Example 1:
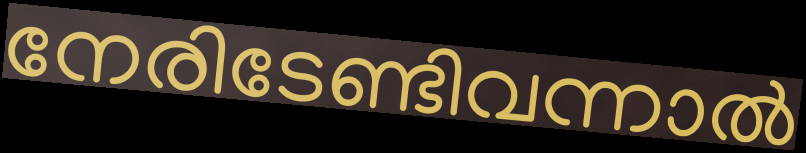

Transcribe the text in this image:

നേരിടേണ്ടിവന്നാൽ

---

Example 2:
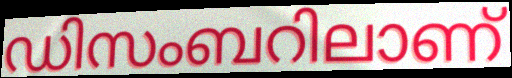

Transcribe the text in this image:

ഡിസംബറിലാണ്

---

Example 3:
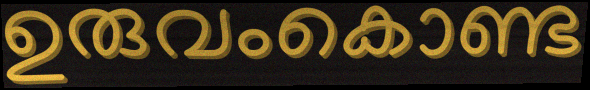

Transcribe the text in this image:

ഉരുവംകൊണ്ട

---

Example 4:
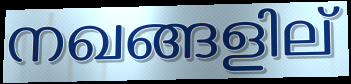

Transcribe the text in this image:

നഖങ്ങളില്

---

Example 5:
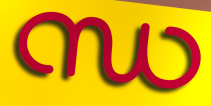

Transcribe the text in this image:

ന്ധ